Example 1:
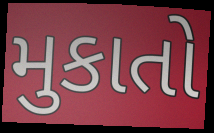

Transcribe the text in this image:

મુકાતો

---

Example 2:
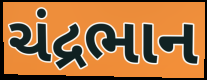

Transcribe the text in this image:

ચંદ્રભાન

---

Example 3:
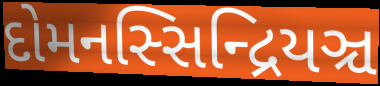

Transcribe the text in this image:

દોમનસ્સિન્દ્રિયઞ્ચ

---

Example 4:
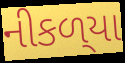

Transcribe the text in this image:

નીકળ્‌યા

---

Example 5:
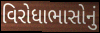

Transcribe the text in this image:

વિરોધાભાસોનું